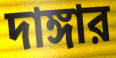
দাঙ্গার